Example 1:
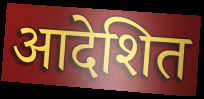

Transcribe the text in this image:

आदेशित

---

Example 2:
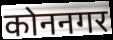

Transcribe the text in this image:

कोननगर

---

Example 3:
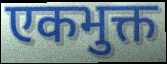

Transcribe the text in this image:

एकभुक्त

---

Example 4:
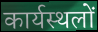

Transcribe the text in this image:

कार्यस्थलों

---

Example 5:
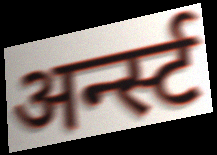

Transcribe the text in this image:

अर्न्स्ट